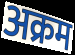
अक्रम